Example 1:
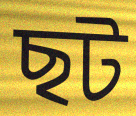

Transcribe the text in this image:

ছট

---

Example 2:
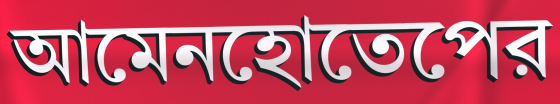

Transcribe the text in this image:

আমেনহোতেপের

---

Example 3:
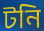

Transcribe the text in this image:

টনি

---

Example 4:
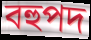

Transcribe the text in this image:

বহুপদ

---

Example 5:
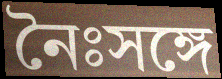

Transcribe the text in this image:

নৈঃসঙ্গে